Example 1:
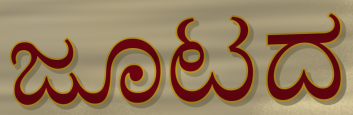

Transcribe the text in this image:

ಜೂಟದ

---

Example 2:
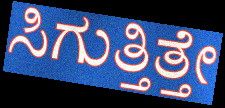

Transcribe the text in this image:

ಸಿಗುತ್ತಿತ್ತೇ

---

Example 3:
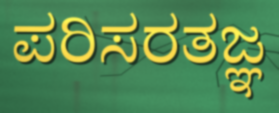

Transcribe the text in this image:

ಪರಿಸರತಜ್ಞ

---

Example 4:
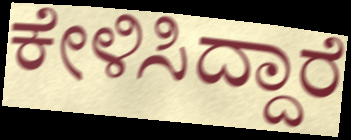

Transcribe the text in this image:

ಕೇಳಿಸಿದ್ದಾರೆ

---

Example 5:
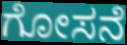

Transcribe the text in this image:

ಗೋಸನೆ